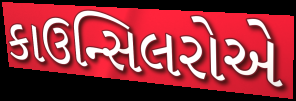
કાઉન્સિલરોએ